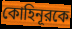
কোহিনূরকে